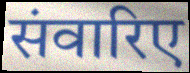
संवारिए